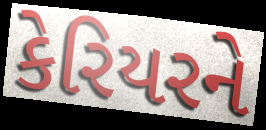
કેરિયરને